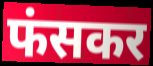
फंसकर